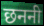
छननी